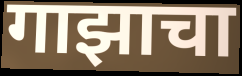
गाझाचा